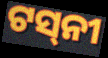
ଟସ୍‌ନୀ